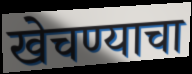
खेचण्याचा